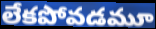
లేకపోవడమూ